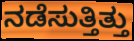
ನಡೆಸುತ್ತಿತ್ತು